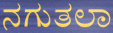
ನಗುತಲಾ